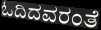
ಓದಿದವರಂತೆ